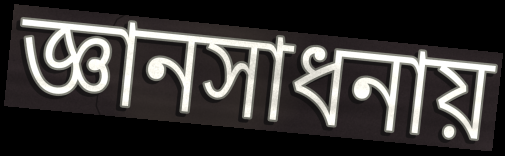
জ্ঞানসাধনায়